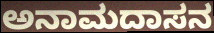
ಅನಾಮದಾಸನ